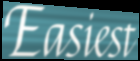
Easiest